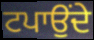
ਟਪਾਉਂਦੇ